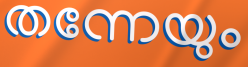
തന്നേയും